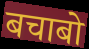
बचाबो